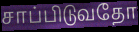
சாப்பிடுவதோ